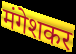
मंगेशकर